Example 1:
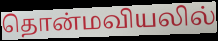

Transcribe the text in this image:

தொன்மவியலில்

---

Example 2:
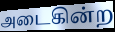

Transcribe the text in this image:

அடைகின்ற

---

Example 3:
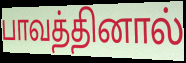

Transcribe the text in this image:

பாவத்தினால்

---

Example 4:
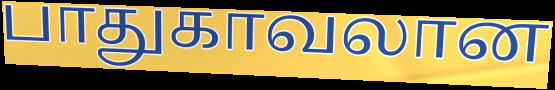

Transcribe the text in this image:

பாதுகாவலான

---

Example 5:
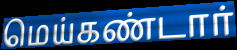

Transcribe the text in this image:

மெய்கண்டார்